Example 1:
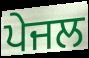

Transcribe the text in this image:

ਪੇਜਲ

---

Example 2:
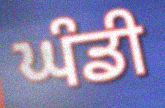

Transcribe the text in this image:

ਘੰਡੀ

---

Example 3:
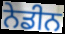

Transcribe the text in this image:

ਨੇਡੀਨ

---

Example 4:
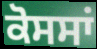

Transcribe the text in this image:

ਕੋਸਸਾਂ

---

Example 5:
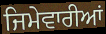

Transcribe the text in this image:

ਜਿਮੇਵਾਰੀਆਂ